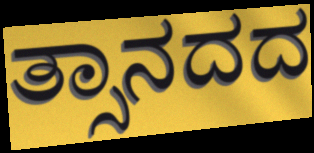
ತ್ಸಾನದದ